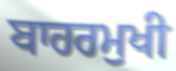
ਬਾਹਰਮੁਖੀ